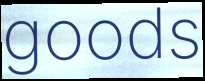
goods